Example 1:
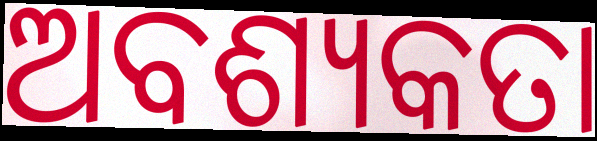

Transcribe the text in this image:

ଅବଶ୍ୟକତା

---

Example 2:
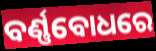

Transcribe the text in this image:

ବର୍ଣ୍ଣବୋଧରେ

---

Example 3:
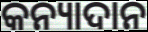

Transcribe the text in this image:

କନ୍ୟାଦାନ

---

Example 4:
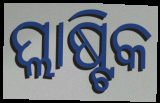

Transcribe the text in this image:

ପ୍ଲାଷ୍ଟିକ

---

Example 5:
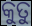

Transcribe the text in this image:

କୁତୁ